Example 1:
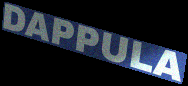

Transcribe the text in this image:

DAPPULA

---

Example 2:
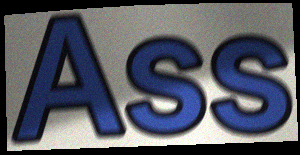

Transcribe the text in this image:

Ass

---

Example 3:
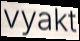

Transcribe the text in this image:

vyakt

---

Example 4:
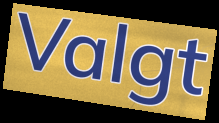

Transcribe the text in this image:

Valgt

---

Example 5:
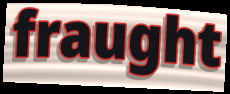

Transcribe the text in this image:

fraught